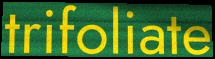
trifoliate